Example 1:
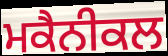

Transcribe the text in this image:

ਮਕੈਨੀਕਲ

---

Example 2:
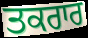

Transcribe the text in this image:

ਤਕਰਾਰ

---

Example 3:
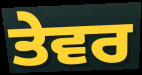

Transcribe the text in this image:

ਤੇਵਰ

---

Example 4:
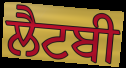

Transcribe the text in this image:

ਲੈਟਬੀ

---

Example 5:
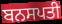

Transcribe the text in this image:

ਬਨਸਪਤੀ